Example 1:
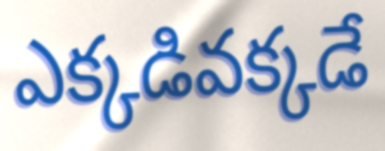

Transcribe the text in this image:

ఎక్కడివక్కడే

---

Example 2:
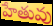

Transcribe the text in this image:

హేతువు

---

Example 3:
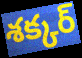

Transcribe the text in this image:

శక్కర్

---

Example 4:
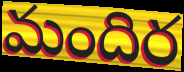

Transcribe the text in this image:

మందిర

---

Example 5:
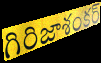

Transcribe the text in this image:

గిరిజాశంకర్